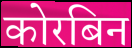
कोरबिन